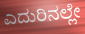
ಎದುರಿನಲ್ಲೇ